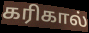
கரிகால்